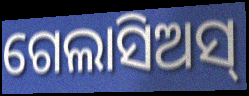
ଗେଲାସିଅସ୍